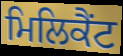
ਮਿਲਿਕੈਂਟ